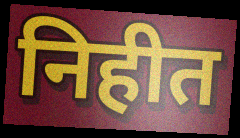
निहीत